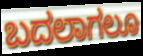
ಬದಲಾಗಲೂ